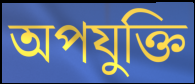
অপযুক্তি